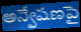
అన్వేషణపై